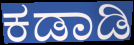
ಕಡಾಡಿ